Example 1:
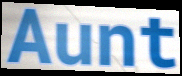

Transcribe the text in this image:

Aunt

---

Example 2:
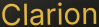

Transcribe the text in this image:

Clarion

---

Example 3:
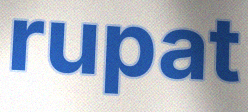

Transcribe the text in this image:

rupat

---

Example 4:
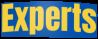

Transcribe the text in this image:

Experts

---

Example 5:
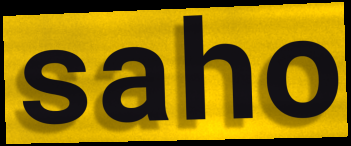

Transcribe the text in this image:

saho